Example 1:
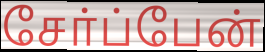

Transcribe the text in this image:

சேர்ப்பேன்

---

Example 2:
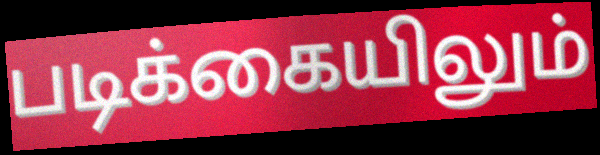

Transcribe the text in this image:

படிக்கையிலும்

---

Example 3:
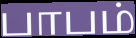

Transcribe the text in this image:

பாபம்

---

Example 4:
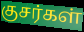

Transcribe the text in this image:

குசர்கள்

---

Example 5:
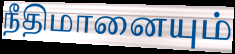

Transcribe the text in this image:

நீதிமானையும்